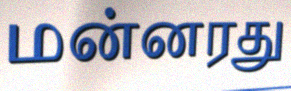
மன்னரது